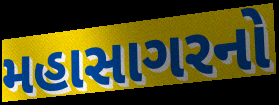
મહાસાગરનો